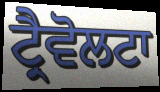
ਟ੍ਰੈਵੋਲਟਾ